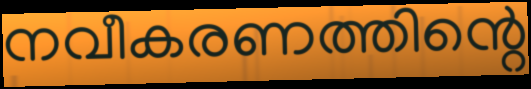
നവീകരണത്തിന്റെ